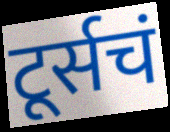
टूर्सचं